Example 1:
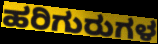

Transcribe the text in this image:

ಹರಿಗುರುಗಳ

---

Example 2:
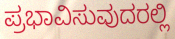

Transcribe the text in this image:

ಪ್ರಭಾವಿಸುವುದರಲ್ಲಿ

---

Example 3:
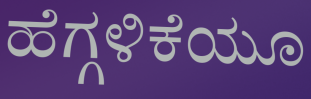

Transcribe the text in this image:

ಹೆಗ್ಗಳಿಕೆಯೂ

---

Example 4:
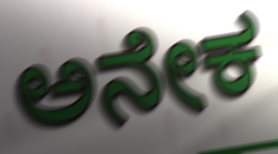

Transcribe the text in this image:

ಅನೇಕ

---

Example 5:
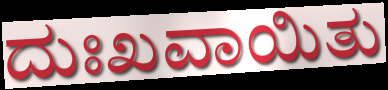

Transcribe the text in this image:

ದುಃಖವಾಯಿತು